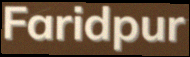
Faridpur